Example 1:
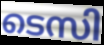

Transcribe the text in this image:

ടെസി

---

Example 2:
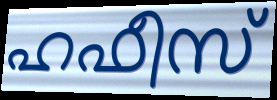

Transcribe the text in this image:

ഹഫീസ്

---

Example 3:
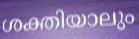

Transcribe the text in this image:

ശക്തിയാലും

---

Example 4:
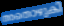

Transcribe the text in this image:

അതൊഴുകി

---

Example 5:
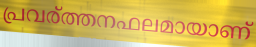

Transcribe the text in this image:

പ്രവര്ത്തനഫലമായാണ്